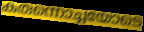
കുരുന്നൊച്ചയോടെ